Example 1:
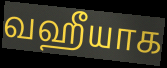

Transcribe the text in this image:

வஹீயாக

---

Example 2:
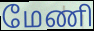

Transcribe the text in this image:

மேணி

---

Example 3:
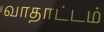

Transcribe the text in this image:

வாதாட்டம்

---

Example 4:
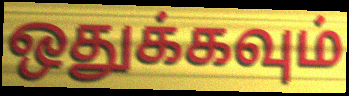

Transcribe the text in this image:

ஒதுக்கவும்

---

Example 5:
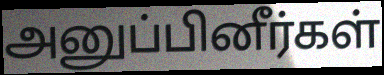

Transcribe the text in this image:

அனுப்பினீர்கள்